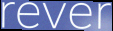
rever